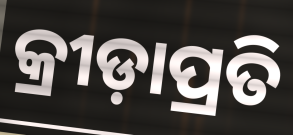
କ୍ରୀଡ଼ାପ୍ରତି